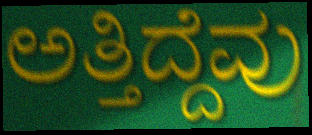
ಅತ್ತಿದ್ದೆವು